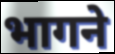
भागने